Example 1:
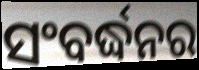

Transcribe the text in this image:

ସଂବର୍ଦ୍ଧନର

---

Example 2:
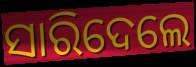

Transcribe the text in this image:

ସାରିଦେଲେ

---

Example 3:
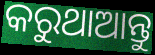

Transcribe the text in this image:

କରୁଥାଆନ୍ତୁ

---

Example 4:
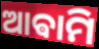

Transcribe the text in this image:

ଆଵାମି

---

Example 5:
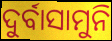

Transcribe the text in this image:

ଦୁର୍ବାସାମୁନି